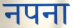
नपना